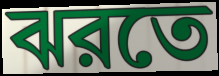
ঝরতে